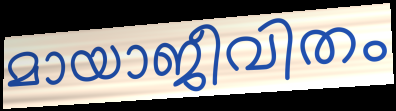
മായാജീവിതം